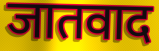
जातवाद